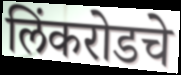
लिंकरोडचे